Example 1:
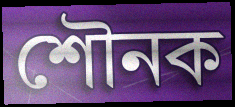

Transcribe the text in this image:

শৌনক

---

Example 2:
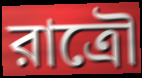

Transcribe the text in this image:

রাত্রৌ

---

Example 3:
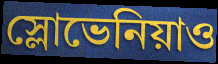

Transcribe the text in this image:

স্লোভেনিয়াও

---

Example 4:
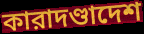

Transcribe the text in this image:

কারাদণ্ডাদেশ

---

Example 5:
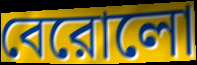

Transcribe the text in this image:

বেরোলো